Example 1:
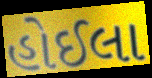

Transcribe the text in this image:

હોઈલા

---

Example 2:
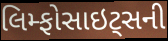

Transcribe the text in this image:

લિમ્ફોસાઇટ્સની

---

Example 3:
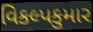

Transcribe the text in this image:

વિકલ્પકુમાર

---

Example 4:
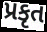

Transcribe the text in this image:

પ્રકૃત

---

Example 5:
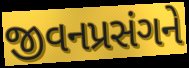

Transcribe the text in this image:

જીવનપ્રસંગને